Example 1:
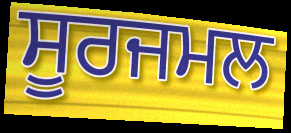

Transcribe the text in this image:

ਸੂਰਜਮਲ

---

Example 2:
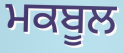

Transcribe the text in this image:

ਮਕਬੂਲ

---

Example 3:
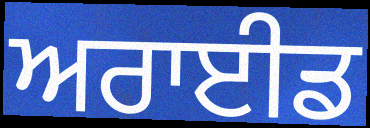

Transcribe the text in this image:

ਅਰਾਈਡ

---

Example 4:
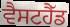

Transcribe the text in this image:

ਵੈਸਟਹੈੱਡ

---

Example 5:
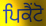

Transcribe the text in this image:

ਪਿਕੈਂਟੋ